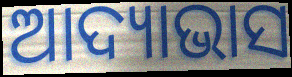
ଆଦ୍ୟାଭାସ